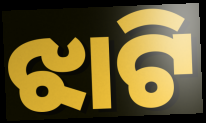
ଝାଟି